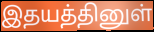
இதயத்தினுள்